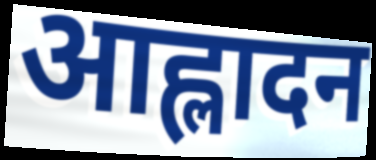
आह्लादन